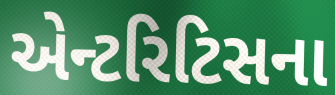
એન્ટરિટિસના